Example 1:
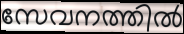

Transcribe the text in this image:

സേവനത്തിൽ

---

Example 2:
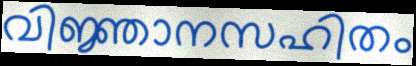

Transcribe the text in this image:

വിജ്ഞാനസഹിതം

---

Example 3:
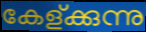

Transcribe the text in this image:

കേള്ക്കുന്നു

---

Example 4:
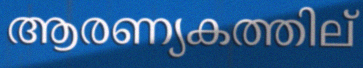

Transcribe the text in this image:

ആരണ്യകത്തില്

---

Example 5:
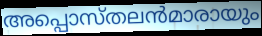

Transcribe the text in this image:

അപ്പൊസ്തലൻമാരായും